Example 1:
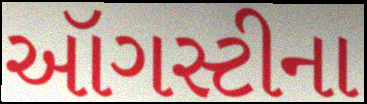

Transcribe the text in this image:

ઑગસ્ટીના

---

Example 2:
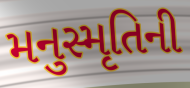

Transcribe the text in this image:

મનુસ્મૃતિની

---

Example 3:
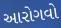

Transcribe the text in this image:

આરોગવો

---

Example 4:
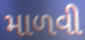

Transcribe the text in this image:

માળવી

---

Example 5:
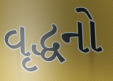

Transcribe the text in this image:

વૃદ્ધનો